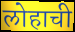
लोहाची